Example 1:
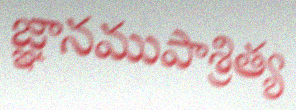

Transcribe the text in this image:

జ్ఞానముపాశ్రిత్య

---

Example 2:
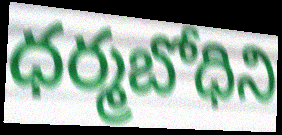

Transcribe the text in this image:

ధర్మబోధిని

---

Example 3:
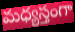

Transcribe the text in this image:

మధ్యస్తంగా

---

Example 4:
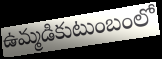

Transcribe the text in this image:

ఉమ్మడికుటుంబంలో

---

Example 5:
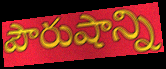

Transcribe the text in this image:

పౌరుషాన్ని